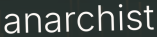
anarchist